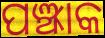
ପଞ୍ଝାକ